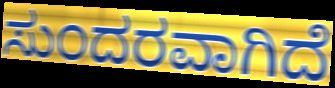
ಸುಂದರವಾಗಿದೆ